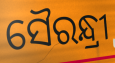
ସୈରନ୍ଧ୍ରୀ